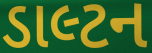
ડાલ્ટન